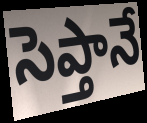
సెప్తానే